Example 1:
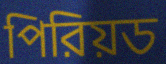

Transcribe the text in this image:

পিরিয়ড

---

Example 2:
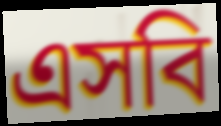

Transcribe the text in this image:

এসবি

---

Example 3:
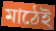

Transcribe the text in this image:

মাঠেই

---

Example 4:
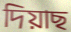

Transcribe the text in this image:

দিয়াছ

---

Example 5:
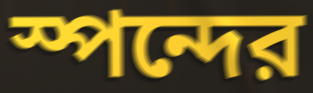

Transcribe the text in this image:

স্পন্দের